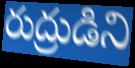
రుద్రుడిని